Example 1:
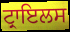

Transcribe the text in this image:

ਟ੍ਰਾਇਲਸ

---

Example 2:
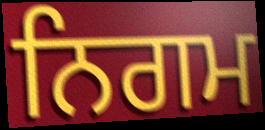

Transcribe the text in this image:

ਨਿਗਮ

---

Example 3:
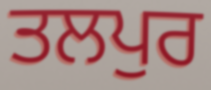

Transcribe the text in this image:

ਤਲਪੁਰ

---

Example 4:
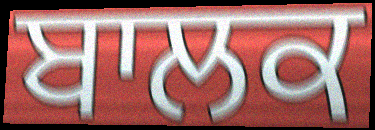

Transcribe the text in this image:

ਬਾਲਕ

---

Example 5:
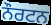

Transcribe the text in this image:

ਨੌਰਟਨ